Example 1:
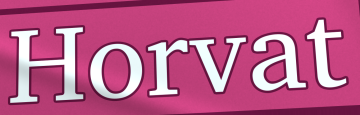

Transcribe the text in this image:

Horvat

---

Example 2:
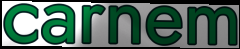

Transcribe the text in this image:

carnem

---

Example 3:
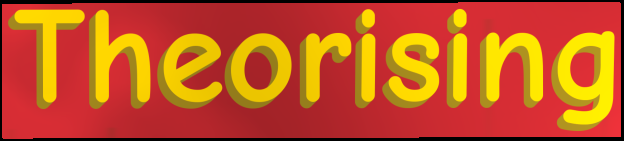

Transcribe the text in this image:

Theorising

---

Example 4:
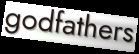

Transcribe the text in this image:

godfathers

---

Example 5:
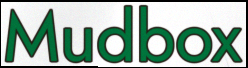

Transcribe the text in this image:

Mudbox